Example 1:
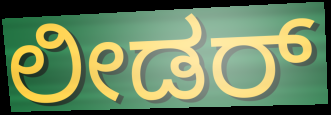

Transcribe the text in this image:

ಲೀಡರ್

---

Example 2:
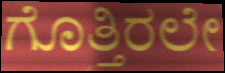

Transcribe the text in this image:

ಗೊತ್ತಿರಲೇ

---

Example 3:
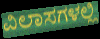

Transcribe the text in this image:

ವಿಲಾಸಗಳಲ್ಲಿ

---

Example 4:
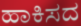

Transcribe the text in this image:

ಹಾಕಿಸದ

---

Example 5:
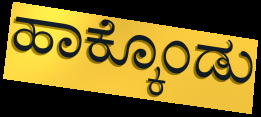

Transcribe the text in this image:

ಹಾಕ್ಕೊಂಡು